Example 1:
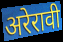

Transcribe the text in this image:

अरेरावी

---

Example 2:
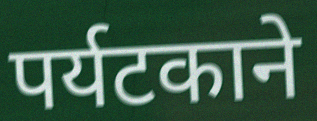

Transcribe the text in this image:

पर्यटकाने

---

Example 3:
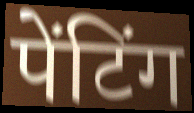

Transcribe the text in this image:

पेंटिंग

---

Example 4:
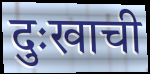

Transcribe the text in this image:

दुःखाची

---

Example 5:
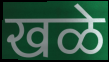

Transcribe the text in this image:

खळे